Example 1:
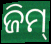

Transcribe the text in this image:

ଜିମ୍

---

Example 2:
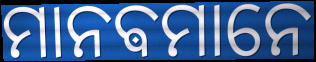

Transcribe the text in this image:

ମାନଵମାନେ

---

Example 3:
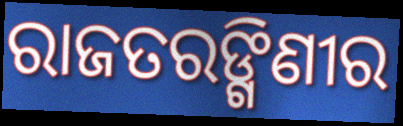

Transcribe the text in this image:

ରାଜତରଙ୍ଗିଣୀର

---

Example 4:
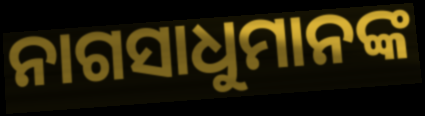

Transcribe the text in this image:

ନାଗସାଧୁମାନଙ୍କ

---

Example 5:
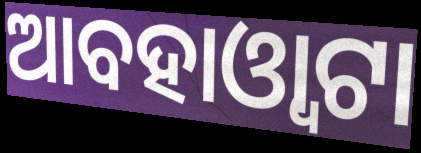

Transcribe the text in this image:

ଆବହାଓ୍ୱାଟା